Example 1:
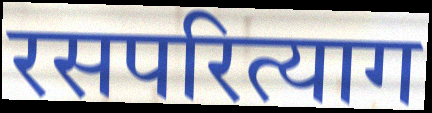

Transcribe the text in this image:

रसपरित्याग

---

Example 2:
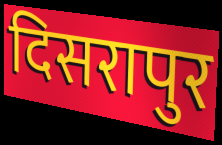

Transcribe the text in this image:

दिसरापुर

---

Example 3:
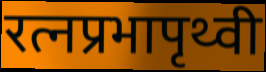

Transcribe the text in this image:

रत्नप्रभापृथ्वी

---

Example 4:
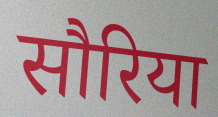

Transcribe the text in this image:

सौरिया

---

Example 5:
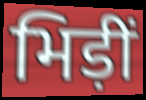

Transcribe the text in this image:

भिड़ीं